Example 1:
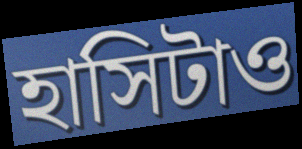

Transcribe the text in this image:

হাসিটাও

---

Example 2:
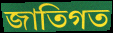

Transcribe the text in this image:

জাতিগত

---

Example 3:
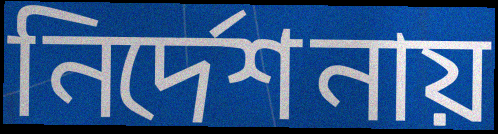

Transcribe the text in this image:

নির্দেশনায়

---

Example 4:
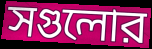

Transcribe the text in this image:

সগুলোর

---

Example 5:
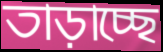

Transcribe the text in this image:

তাড়াচ্ছে